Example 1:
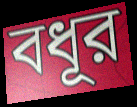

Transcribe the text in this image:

বধূর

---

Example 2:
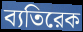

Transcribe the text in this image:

ব্যতিরেক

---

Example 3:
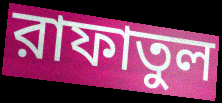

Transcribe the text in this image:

রাফাতুল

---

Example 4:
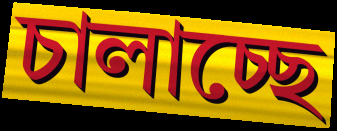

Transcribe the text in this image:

চালাচ্ছে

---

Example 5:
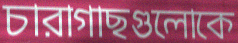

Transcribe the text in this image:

চারাগাছগুলোকে